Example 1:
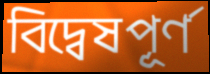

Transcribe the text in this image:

বিদ্বেষপূর্ণ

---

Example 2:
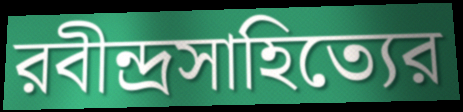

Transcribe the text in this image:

রবীন্দ্রসাহিত্যের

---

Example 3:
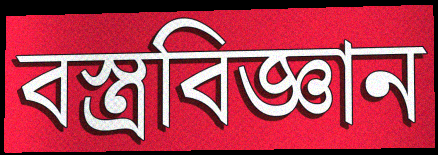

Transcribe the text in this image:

বস্ত্রবিজ্ঞান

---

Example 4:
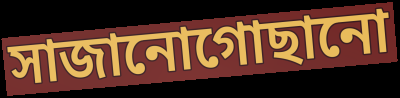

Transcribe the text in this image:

সাজানোগোছানো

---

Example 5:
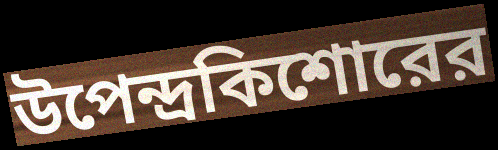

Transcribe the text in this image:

উপেন্দ্রকিশোরের